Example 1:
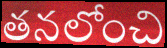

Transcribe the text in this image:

తనలోంచి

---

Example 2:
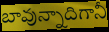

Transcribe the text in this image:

బావున్నాదిగానీ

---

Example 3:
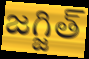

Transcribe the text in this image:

జగ్జిత్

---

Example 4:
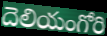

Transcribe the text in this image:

దెలియంగోరి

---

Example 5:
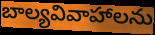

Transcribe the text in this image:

బాల్యవివాహాలను